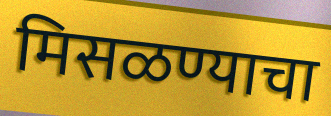
मिसळण्याचा